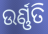
ଉର୍ଣ୍ଣତି